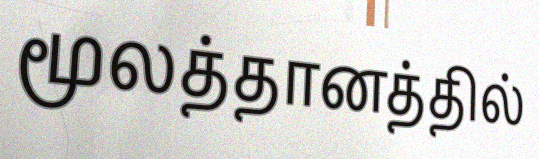
மூலத்தானத்தில்